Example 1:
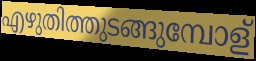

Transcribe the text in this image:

എഴുതിത്തുടങ്ങുമ്പോള്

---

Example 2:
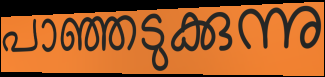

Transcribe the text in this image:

പാഞ്ഞടുക്കുന്നു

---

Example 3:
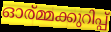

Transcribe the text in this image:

ഓര്മ്മക്കുറിപ്പ്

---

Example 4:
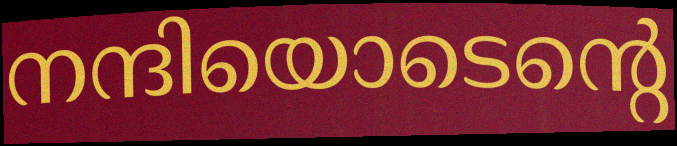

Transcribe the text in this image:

നന്ദിയൊടെന്റെ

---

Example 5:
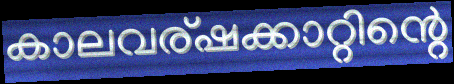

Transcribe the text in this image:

കാലവര്ഷക്കാറ്റിന്റെ